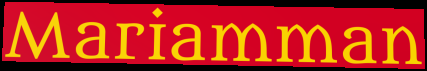
Mariamman